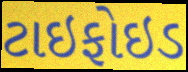
ટાઇફોઇડ